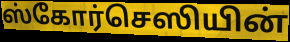
ஸ்கோர்செஸியின்